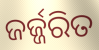
ଜର୍ଜ୍ଜରିତ